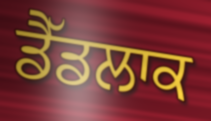
ਡੈੱਡਲਾਕ